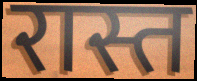
रास्त